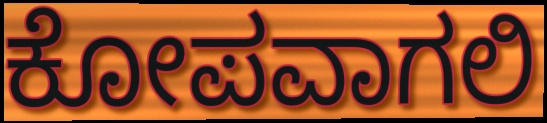
ಕೋಪವಾಗಲಿ